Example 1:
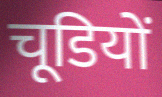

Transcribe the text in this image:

चूडियों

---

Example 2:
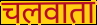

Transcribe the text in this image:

चलवाता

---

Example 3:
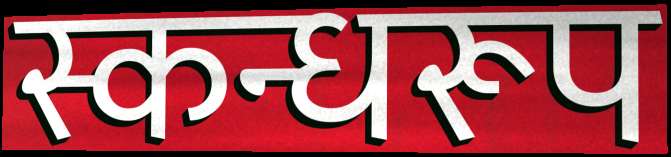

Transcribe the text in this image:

स्कन्धरूप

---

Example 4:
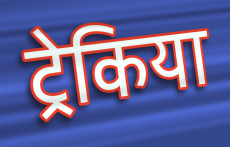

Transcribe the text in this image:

ट्रेकिया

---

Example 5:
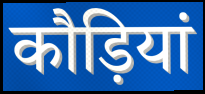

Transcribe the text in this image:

कौड़ियां